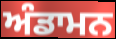
ਅੰਡਾਮਨ